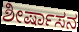
ಶೀರ್ಷಾಸನ